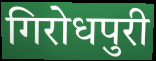
गिरोधपुरी